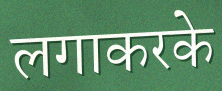
लगाकरके